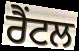
ਰੈਂਟਲ